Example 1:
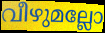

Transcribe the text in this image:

വീഴുമല്ലോ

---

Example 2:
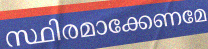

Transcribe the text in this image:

സ്ഥിരമാക്കേണമേ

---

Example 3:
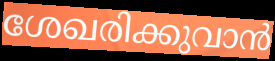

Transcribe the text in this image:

ശേഖരിക്കുവാൻ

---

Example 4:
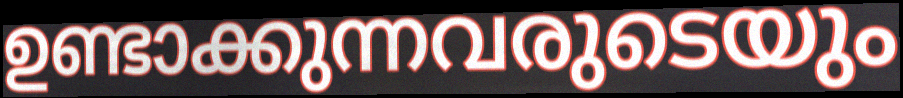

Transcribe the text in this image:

ഉണ്ടാക്കുന്നവരുടെയും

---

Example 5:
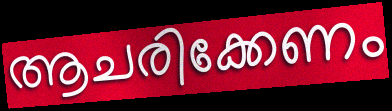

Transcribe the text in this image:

ആചരിക്കേണം